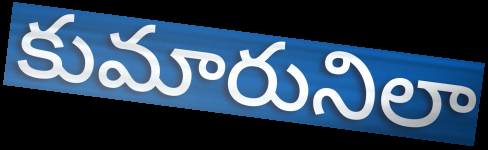
కుమారునిలా